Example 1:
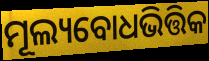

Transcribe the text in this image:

ମୂଲ୍ୟବୋଧଭିତ୍ତିକ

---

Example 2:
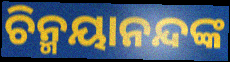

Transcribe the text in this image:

ଚିନ୍ମୟାନନ୍ଦଙ୍କ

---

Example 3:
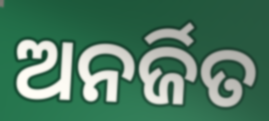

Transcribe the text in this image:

ଅନର୍ଜିତ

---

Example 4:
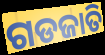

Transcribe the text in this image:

ଗଡଜାତି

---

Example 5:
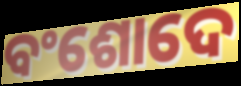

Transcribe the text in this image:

ବଂଶୋଦେ